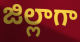
జిల్లాగా